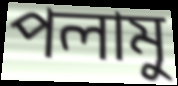
পলামু